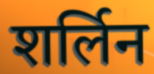
शर्लिन